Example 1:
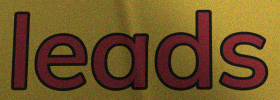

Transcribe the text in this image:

leads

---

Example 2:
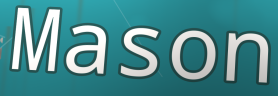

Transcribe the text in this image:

Mason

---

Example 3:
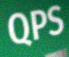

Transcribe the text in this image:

QPS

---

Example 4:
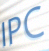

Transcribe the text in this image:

IPC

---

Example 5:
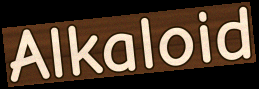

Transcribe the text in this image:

Alkaloid